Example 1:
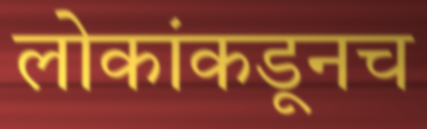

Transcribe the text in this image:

लोकांकडूनच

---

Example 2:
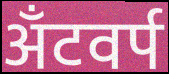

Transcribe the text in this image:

अँटवर्प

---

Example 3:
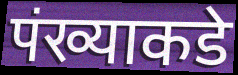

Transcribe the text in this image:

पंख्याकडे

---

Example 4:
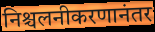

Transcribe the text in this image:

निश्चलनीकरणानंतर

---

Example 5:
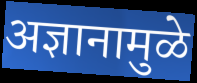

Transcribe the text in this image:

अज्ञानामुळे